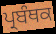
ਪ੍ਰਬੰਥਕ